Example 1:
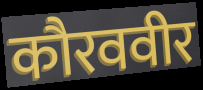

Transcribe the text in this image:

कौरववीर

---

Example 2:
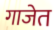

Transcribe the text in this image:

गाजेत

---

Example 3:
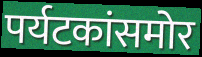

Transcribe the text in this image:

पर्यटकांसमोर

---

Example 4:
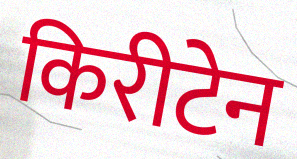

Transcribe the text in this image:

किरीटेन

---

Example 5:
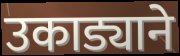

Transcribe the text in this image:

उकाड्याने